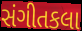
સંગીતકલા